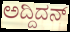
ಅದ್ದಿದನ್